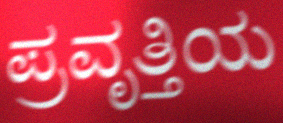
ಪ್ರವೃತ್ತಿಯ